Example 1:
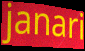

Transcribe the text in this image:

janari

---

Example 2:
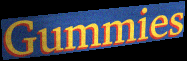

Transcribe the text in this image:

Gummies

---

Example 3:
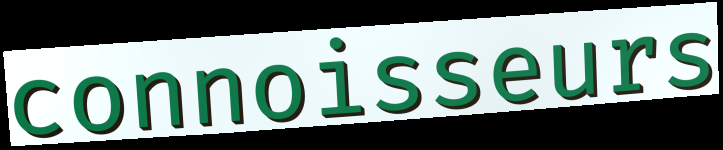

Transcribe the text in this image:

connoisseurs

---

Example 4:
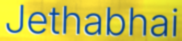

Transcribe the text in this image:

Jethabhai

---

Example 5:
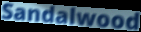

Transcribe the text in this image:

Sandalwood